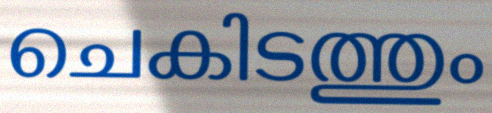
ചെകിടത്തും